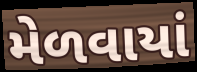
મેળવાયાં